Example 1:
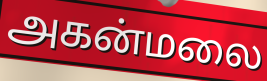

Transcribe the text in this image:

அகன்மலை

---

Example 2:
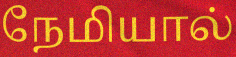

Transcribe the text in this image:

நேமியால்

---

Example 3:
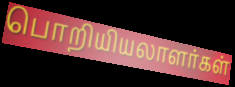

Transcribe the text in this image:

பொறியியலாளர்கள்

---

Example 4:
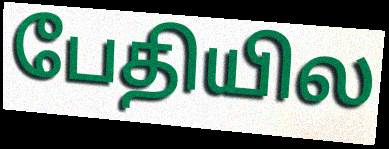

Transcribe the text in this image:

பேதியில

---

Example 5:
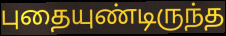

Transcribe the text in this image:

புதையுண்டிருந்த